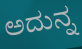
ಅದುನ್ನ